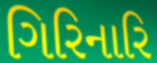
ગિરિનારિ